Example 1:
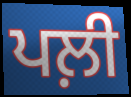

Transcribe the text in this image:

ਪਲ਼ੀ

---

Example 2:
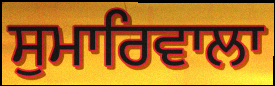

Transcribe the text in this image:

ਸੁਮਾਰਿਵਾਲਾ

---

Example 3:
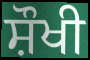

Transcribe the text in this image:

ਸ਼ੌਖੀ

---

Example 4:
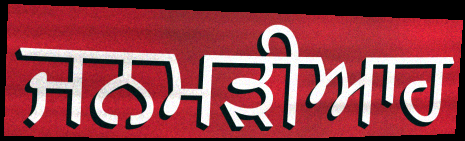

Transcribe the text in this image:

ਜਨਮੜੀਆਹ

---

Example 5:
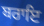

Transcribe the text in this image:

ਬਰਾਇ